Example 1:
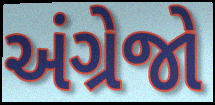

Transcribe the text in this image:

અંગ્રેજો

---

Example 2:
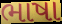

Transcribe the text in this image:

ભાષા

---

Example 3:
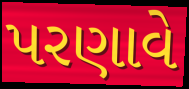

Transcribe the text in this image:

પરણાવે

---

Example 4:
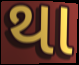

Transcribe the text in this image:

થા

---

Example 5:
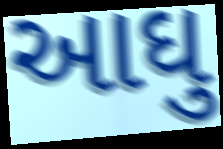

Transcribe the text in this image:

આઘુ